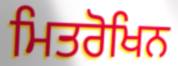
ਮਿਤਰੋਖਿਨ